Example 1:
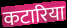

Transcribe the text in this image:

कटारिया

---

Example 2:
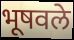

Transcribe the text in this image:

भूषवले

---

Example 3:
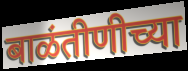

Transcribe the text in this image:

बाळंतीणीच्या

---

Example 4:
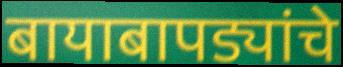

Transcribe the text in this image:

बायाबापड्यांचे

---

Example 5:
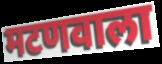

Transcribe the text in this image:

मटणवाला